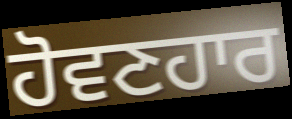
ਹੋਵਣਹਾਰ